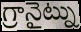
గ్రానైట్ను